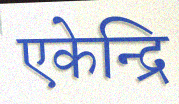
एकेन्द्रि